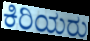
ಕಿರಿಯರು